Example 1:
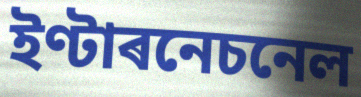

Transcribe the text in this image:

ইণ্টাৰনেচনেল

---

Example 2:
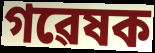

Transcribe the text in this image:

গৱেষক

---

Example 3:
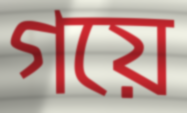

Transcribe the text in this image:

গয়ে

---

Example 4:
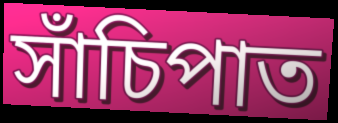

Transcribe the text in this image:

সাঁচিপাত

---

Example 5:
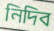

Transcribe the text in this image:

নিদিব